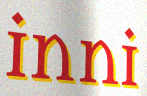
inni